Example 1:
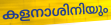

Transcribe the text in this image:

കളനാശിനിയും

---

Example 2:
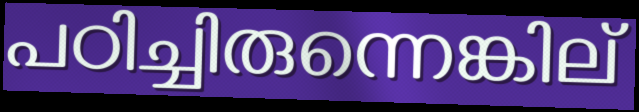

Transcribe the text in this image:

പഠിച്ചിരുന്നെങ്കില്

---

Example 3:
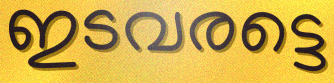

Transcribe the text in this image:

ഇടവരട്ടെ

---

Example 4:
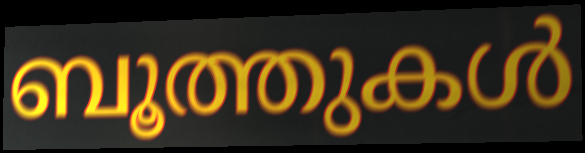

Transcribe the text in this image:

ബൂത്തുകൾ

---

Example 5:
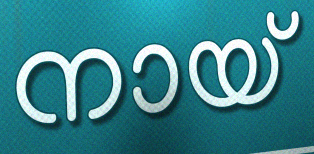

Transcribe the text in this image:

നായ്